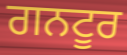
ਗਨਟੂਰ